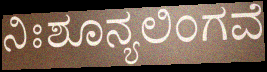
ನಿಃಶೂನ್ಯಲಿಂಗವೆ